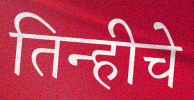
तिन्हीचे